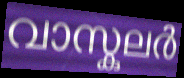
വാസ്കുലർ